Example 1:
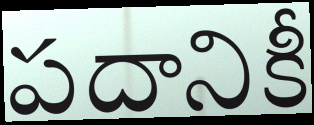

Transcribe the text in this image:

పదానికీ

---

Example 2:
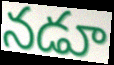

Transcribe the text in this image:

నడూ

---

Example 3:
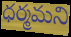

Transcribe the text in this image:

ధర్మమని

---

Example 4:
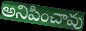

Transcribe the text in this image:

అనిపించావు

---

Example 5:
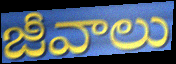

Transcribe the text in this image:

జీవాలు